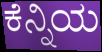
ಕೆನ್ನಿಯ